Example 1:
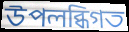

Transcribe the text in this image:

উপলব্ধিগত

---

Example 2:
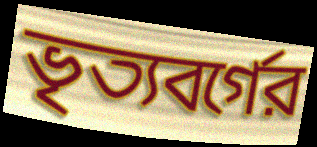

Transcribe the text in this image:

ভৃত্যবর্গের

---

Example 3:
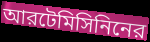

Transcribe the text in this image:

আরটেমিসিনিনের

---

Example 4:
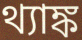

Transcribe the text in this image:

থ্যাঙ্ক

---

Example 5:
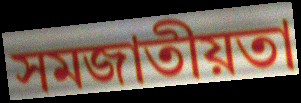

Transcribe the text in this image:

সমজাতীয়তা